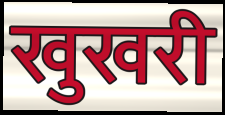
खुखरी